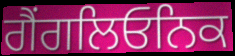
ਗੈਂਗਲਿਓਨਿਕ